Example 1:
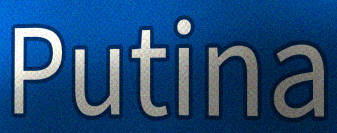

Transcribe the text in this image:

Putina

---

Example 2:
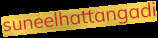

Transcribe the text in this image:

suneelhattangadi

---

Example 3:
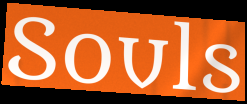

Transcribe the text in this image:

Souls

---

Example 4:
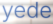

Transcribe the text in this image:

yede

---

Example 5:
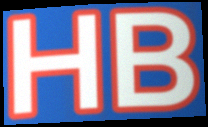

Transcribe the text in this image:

HB